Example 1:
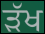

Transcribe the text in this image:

ੜੱਖ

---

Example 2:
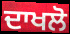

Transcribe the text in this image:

ਦਾਖਲੋ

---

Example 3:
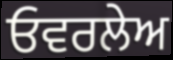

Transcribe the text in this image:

ਓਵਰਲੇਅ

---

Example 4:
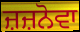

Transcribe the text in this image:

ਜ਼ਜ਼ਨੋਵਾ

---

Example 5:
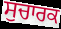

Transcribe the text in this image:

ਸੁਚਾਰਕ